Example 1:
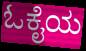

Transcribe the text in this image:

ಓಕೈಯ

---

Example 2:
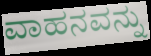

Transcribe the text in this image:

ವಾಹನವನ್ನು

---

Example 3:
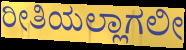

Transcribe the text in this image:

ರೀತಿಯಲ್ಲಾಗಲೀ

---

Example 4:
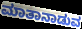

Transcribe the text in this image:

ಮಾತಾನಾಡುವ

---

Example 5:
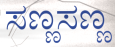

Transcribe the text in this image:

ಸಣ್ಣಸಣ್ಣ